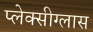
प्लेक्सीग्लास